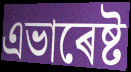
এভাৰেষ্ট